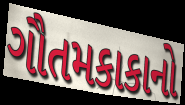
ગૌતમકાકાનો